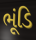
ભૂંડિ